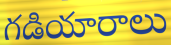
గడియారాలు